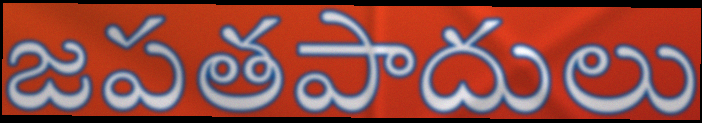
జపతపాదులు